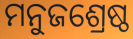
ମନୁଜଶ୍ରେଷ୍ଠ